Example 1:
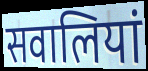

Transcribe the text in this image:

सवालियां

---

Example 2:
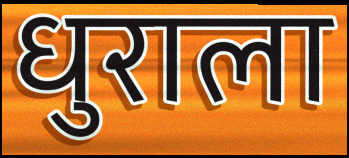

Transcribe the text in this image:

धुराला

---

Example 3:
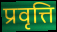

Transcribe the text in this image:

प्रवृत्ति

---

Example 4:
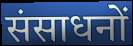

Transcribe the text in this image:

संसाधनों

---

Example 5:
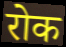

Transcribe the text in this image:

रोक